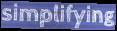
simplifying